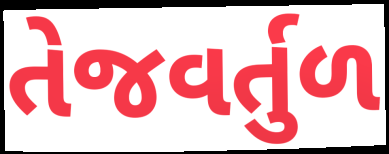
તેજવર્તુળ